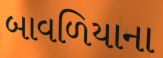
બાવળિયાના